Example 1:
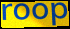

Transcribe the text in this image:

roop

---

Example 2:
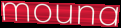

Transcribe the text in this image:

mouna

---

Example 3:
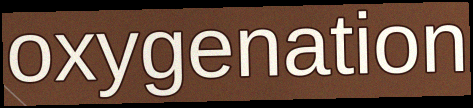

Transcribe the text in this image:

oxygenation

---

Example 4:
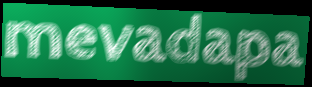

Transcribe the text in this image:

mevadapa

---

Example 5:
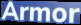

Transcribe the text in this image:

Armor